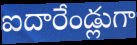
ఐదారేండ్లుగా